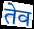
तेव